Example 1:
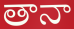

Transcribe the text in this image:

తానా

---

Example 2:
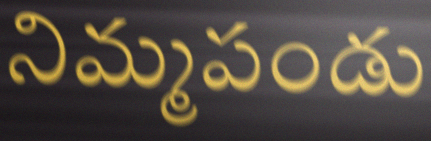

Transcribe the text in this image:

నిమ్మపండు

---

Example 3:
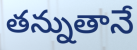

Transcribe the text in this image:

తన్నుతానే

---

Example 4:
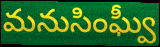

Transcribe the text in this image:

మనుసింఘ్వీ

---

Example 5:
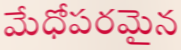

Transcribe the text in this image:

మేధోపరమైన